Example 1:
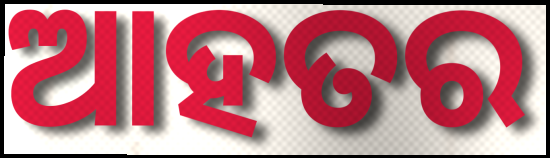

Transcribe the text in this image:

ଆହତର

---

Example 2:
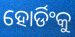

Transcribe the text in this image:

ହୋର୍ଡିଂକୁ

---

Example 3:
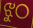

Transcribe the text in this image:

ଝୁଠ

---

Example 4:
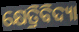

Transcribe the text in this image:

କ୍ଷେତ୍ରିବିଦ୍ୟା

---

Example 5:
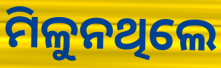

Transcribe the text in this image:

ମିଳୁନଥିଲେ